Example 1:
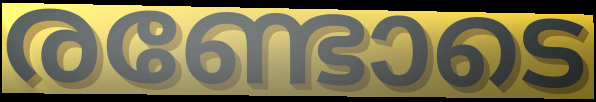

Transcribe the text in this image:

രണ്ടോടെ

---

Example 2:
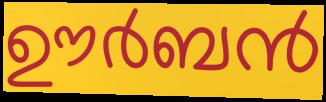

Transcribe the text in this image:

ഊർബൻ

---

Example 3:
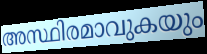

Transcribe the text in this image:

അസ്ഥിരമാവുകയും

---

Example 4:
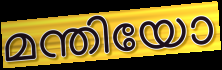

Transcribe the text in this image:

മന്തിയോ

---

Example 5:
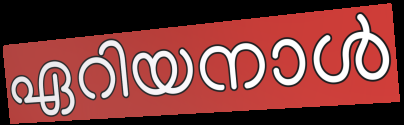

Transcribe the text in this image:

ഏറിയനാൾ